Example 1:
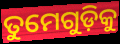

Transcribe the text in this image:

ତୁମେଗୁଡ଼ିକୁ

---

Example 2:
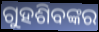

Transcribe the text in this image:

ଗୁହଶିବଙ୍କର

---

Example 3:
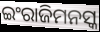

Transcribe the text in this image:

ଇଂରାଜିମନସ୍କ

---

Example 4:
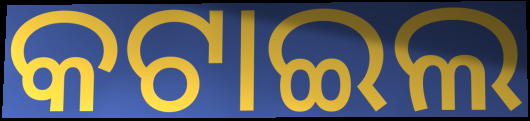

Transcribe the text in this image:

କଟାଇଲ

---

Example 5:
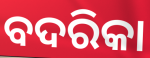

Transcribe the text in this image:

ବଦରିକା